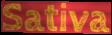
Sativa